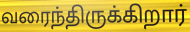
வரைந்திருக்கிறார்